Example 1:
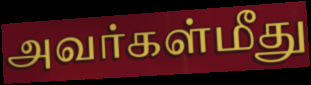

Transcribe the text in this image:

அவர்கள்மீது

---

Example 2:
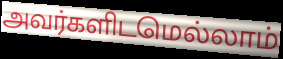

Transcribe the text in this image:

அவர்களிடமெல்லாம்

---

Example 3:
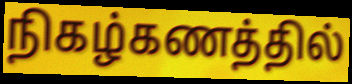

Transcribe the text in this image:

நிகழ்கணத்தில்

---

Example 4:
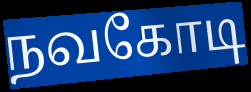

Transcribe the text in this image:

நவகோடி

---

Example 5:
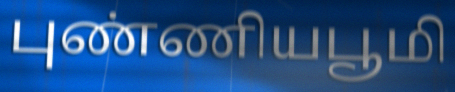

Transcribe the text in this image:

புண்ணியபூமி